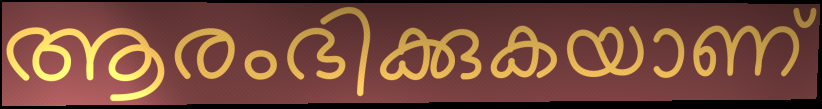
ആരംഭിക്കുകയാണ്